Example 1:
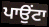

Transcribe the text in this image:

ਪਾਉਂਟਾ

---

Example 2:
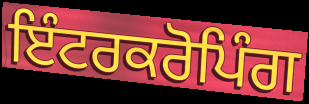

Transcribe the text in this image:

ਇੰਟਰਕਰੋਪਿੰਗ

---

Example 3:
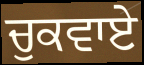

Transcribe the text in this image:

ਚੁਕਵਾਏ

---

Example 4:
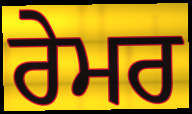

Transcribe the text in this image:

ਰੇਮਰ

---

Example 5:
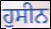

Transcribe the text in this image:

ਹੁਸੀਨ